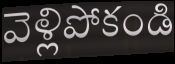
వెళ్లిపోకండి